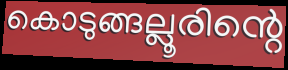
കൊടുങ്ങല്ലൂരിന്റെ